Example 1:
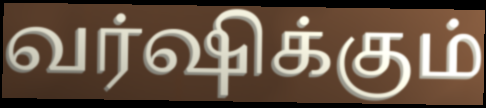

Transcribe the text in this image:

வர்ஷிக்கும்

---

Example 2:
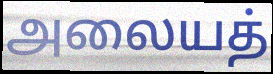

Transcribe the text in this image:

அலையத்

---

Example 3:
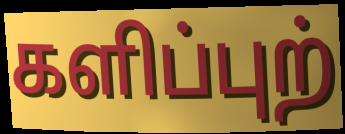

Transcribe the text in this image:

களிப்புற்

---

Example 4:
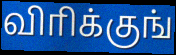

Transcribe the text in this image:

விரிக்குங்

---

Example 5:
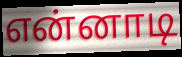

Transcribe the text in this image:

என்னாடி